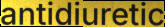
antidiuretic